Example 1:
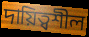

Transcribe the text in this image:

দায়িত্বশীল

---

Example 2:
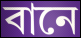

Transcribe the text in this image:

বানে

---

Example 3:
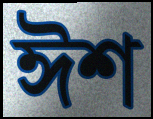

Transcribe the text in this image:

ঈশ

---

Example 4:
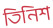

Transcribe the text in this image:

তিনিশ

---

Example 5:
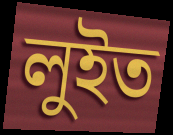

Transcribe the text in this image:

লুইত